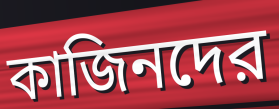
কাজিনদের